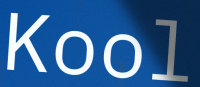
Kool